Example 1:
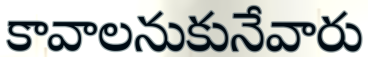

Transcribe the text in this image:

కావాలనుకునేవారు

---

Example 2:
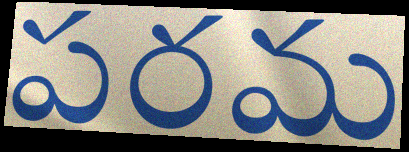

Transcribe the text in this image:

పరమ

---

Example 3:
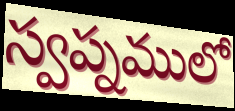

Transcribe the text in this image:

స్వప్నములో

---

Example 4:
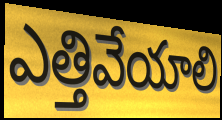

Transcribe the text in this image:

ఎత్తివేయాలి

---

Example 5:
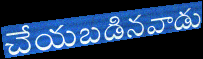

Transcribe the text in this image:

చేయబడినవాడు